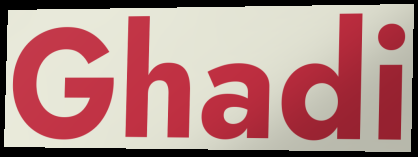
Ghadi